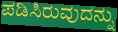
ಪಡಿಸಿರುವುದನ್ನು